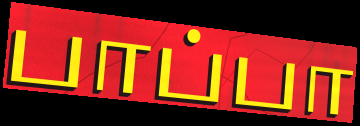
பாப்பா